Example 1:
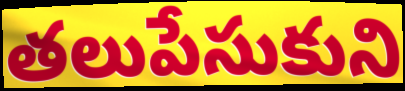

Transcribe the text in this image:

తలుపేసుకుని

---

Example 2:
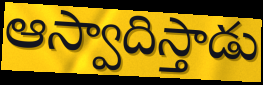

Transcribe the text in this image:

ఆస్వాదిస్తాడు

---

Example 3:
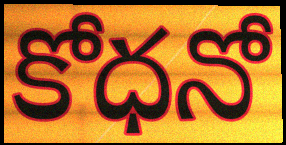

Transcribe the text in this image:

కోధనో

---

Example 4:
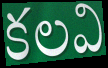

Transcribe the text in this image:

కలవి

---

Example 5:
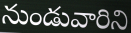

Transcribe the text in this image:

నుండువారిని